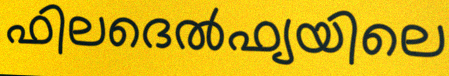
ഫിലദെൽഫ്യയിലെ